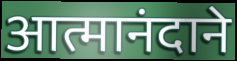
आत्मानंदाने